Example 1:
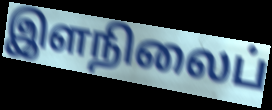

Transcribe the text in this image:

இளநிலைப்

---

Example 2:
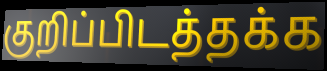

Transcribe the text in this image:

குறிப்பிடத்தக்க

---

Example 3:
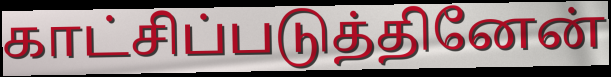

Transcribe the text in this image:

காட்சிப்படுத்தினேன்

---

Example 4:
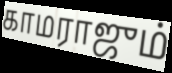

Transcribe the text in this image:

காமராஜும்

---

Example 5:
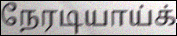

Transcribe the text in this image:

நேரடியாய்க்